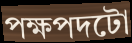
পক্ষপদটো